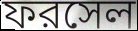
ফরসেল